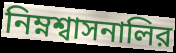
নিম্নশ্বাসনালির